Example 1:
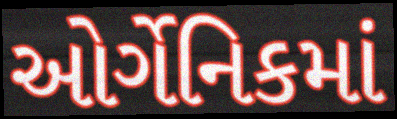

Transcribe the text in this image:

ઓર્ગેનિકમાં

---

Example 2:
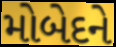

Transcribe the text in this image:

મોબેદને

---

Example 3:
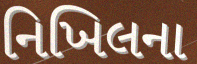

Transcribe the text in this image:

નિખિલના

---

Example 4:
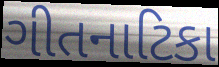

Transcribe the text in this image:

ગીતનાટિકા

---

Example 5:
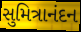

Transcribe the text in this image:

સુમિત્રાનંદન